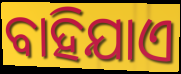
ବାହିଯାଏ